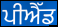
ਪੀਐੱਡ